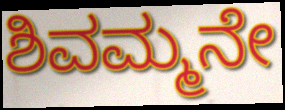
ಶಿವಮ್ಮನೇ